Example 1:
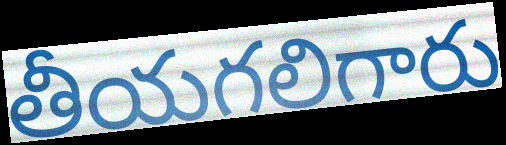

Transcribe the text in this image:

తీయగలిగారు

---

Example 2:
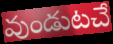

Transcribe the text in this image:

వుండుటచే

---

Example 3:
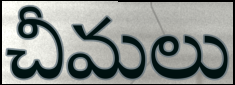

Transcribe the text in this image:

చీమలు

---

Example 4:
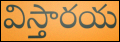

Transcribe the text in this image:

విస్తారయ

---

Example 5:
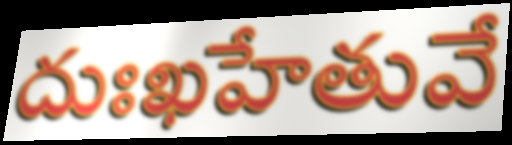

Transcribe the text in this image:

దుఃఖహేతువే